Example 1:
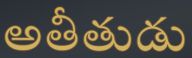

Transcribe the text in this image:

అతీతుడు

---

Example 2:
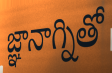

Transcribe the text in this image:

జ్ఞానాగ్నితో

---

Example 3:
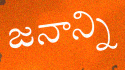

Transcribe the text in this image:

జనాన్ని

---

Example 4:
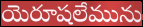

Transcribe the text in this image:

యెరూషలేమును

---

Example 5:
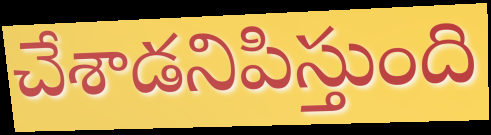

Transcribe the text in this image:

చేశాడనిపిస్తుంది